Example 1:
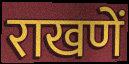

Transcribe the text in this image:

राखणें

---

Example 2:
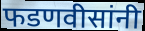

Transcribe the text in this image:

फडणवीसांनी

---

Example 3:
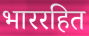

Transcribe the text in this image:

भाररहित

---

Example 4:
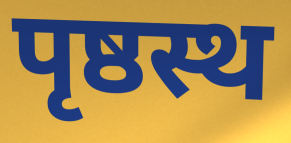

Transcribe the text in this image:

पृष्ठस्थ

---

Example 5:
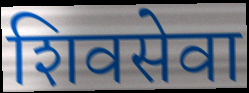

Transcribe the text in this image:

शिवसेवा